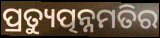
ପ୍ରତ୍ୟୁତ୍ପନ୍ନମତିର